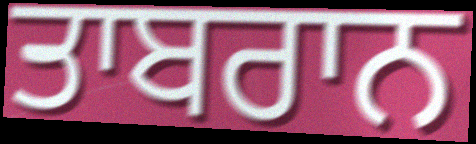
ਤਾਬਰਾਨ